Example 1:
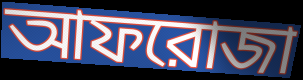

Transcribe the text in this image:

আফরোজা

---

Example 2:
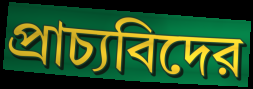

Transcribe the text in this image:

প্রাচ্যবিদের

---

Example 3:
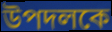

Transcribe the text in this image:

উপদলকে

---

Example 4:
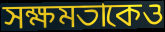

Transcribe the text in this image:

সক্ষমতাকেও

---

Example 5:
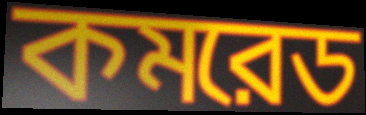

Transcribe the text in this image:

কমরেড